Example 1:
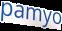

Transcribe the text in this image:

pamyo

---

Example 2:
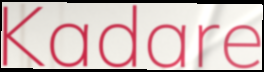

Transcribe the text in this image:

Kadare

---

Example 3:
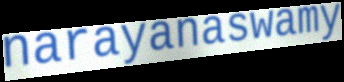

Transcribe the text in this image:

narayanaswamy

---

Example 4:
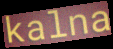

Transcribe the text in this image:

kalna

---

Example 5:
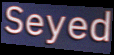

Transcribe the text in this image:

Seyed